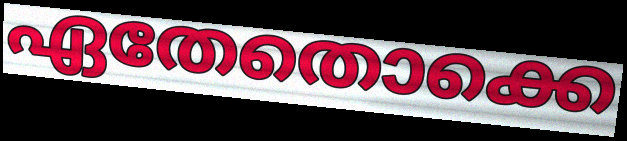
ഏതേതൊക്കെ